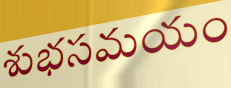
శుభసమయం